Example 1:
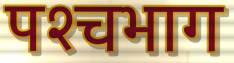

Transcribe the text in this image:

पश्चभाग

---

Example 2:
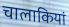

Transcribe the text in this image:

चालाकियां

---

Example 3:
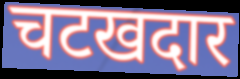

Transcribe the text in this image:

चटखदार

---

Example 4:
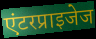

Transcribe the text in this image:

एंटरप्राइजेज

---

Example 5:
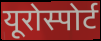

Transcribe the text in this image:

यूरोस्पोर्ट